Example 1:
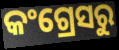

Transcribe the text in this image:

କଂଗ୍ରେସରୁ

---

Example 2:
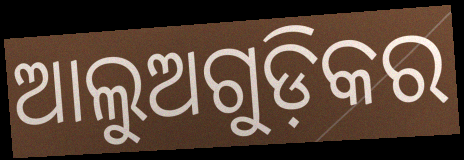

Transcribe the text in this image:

ଆଲୁଅଗୁଡ଼ିକର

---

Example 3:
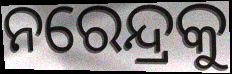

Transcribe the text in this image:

ନରେନ୍ଦ୍ରକୁ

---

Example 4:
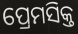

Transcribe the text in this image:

ପ୍ରେମସିକ୍ତ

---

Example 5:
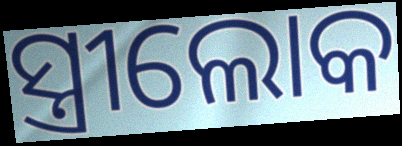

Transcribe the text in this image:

ସ୍ତ୍ରୀଲୋକ